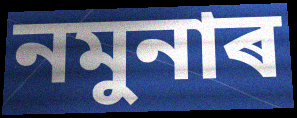
নমুনাৰ